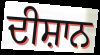
ਦੀਸ਼ਾਨ